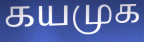
கயமுக